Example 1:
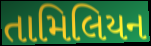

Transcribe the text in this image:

તામિલિયન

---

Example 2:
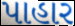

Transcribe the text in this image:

પાહાર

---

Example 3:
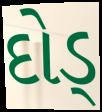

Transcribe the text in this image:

દોડ્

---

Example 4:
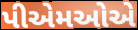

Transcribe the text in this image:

પીએમઓએ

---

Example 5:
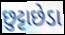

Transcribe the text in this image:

છુટ્ટાછેડા